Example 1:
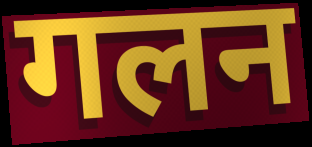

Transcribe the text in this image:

गलन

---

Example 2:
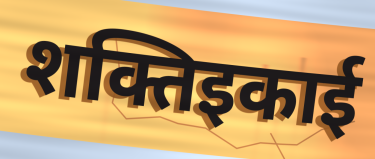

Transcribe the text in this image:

शक्तिइकाई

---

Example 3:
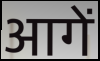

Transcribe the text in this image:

आगें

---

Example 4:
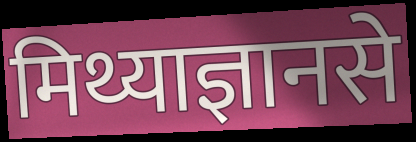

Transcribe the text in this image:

मिथ्याज्ञानसे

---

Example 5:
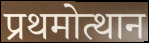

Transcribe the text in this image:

प्रथमोत्थान